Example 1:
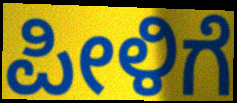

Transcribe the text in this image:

ಪೀಳಿಗೆ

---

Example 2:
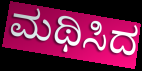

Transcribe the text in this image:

ಮಥಿಸಿದ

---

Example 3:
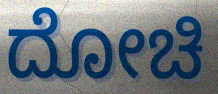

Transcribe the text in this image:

ದೋಚಿ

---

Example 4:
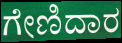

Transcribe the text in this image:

ಗೇಣಿದಾರ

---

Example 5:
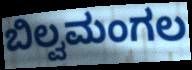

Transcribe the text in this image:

ಬಿಲ್ವಮಂಗಲ